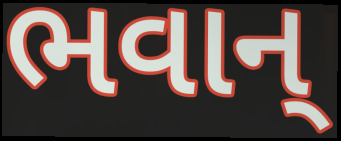
ભવાન્